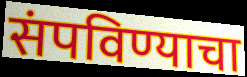
संपविण्याचा